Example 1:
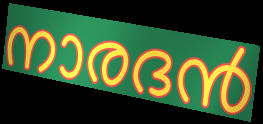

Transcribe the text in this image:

നാരദൻ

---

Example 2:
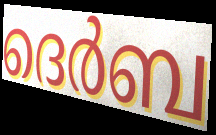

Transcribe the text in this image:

ദെർബ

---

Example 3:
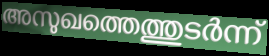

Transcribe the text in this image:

അസുഖത്തെത്തുടർന്ന്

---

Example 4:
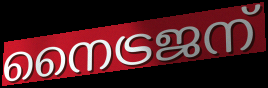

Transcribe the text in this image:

നൈട്രജന്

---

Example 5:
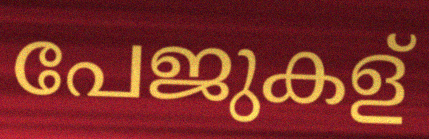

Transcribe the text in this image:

പേജുകള്